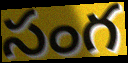
సంగ